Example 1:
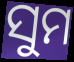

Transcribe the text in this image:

ସୁମ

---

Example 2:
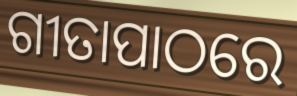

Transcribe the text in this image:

ଗୀତାପାଠରେ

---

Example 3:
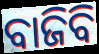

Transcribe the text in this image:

ବାଜିବି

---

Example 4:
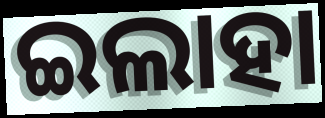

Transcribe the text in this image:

ଇଲାହା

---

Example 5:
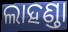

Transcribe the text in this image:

ଲାହଣ୍ଡା